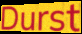
Durst